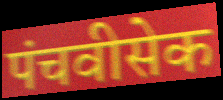
पंचवीसेक